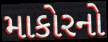
માકોરનો